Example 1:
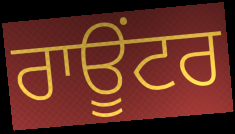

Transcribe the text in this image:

ਰਾਊਂਟਰ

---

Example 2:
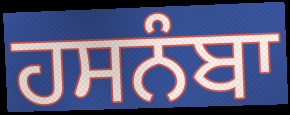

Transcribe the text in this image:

ਹਸਨੰਬਾ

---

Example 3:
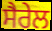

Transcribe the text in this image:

ਸੈਰੇਲ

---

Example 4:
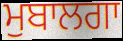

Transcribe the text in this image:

ਮੁਬਾਲਗਾ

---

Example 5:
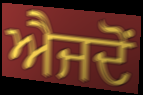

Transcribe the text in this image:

ਐਜਦੋਂ